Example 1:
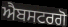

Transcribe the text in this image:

ਐਬਸਟਰਗੋ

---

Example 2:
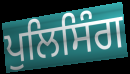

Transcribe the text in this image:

ਪੁਲਿਸਿੰਗ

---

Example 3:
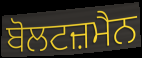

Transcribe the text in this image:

ਬੋਲਟਜ਼ਮੈਨ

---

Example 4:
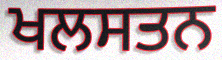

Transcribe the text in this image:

ਖਲਸਤਨ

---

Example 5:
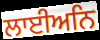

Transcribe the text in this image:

ਲਾਈਅਨਿ